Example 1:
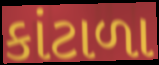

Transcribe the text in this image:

કાંટાળા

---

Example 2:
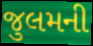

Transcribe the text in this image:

જુલમની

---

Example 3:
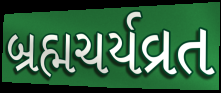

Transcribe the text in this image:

બ્રહ્મચર્યવ્રત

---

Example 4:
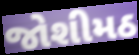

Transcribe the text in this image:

જોશીમઠ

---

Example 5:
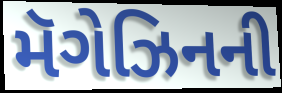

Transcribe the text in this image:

મૅગેઝિનની